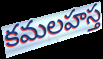
కమలహస్త